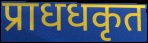
प्राधधकृत